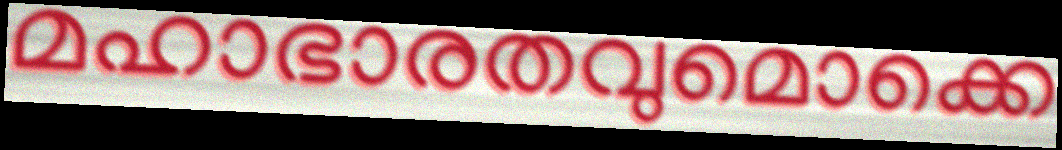
മഹാഭാരതവുമൊക്കെ